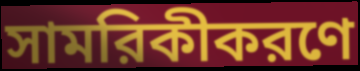
সামরিকীকরণে